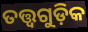
ତତ୍ତ୍ବଗୁଡ଼ିକ